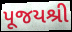
પૂજયશ્રી